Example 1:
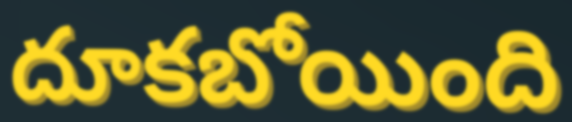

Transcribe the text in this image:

దూకబోయింది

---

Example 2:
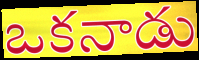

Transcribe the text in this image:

ఒకనాడు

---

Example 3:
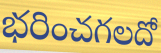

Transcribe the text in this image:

భరించగలదో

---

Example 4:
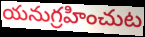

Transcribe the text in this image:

యనుగ్రహించుట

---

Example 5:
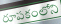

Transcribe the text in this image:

రూపకంలోని